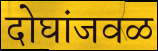
दोघांजवळ